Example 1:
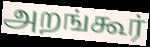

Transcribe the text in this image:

அறங்கூர்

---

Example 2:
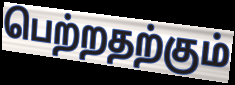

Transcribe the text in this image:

பெற்றதற்கும்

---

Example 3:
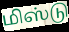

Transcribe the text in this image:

மிஸ்டு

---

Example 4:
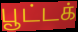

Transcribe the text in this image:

பூட்டக்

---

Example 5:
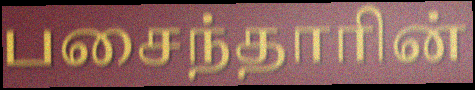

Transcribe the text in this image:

பசைந்தாரின்